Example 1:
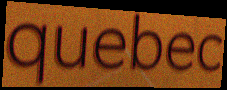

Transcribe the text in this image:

quebec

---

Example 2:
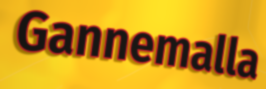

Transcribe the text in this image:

Gannemalla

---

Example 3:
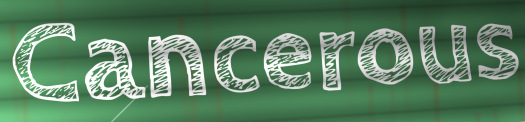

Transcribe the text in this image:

Cancerous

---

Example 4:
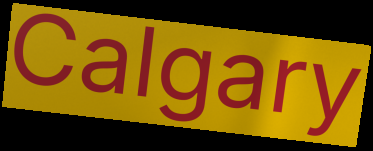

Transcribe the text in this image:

Calgary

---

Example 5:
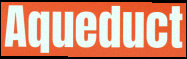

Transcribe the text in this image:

Aqueduct